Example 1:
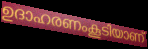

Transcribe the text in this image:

ഉദാഹരണംകൂടിയാണ്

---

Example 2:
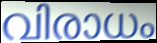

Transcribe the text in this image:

വിരാധം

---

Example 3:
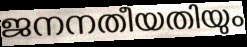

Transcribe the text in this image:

ജനനതീയതിയും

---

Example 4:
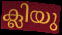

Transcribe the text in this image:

ക്ലിയു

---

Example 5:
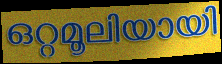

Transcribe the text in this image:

ഒറ്റമൂലിയായി